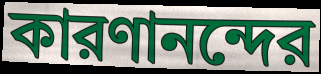
কারণানন্দের